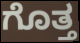
ಗೊತ್ತ